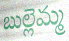
బుల్లెమ్మ